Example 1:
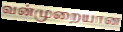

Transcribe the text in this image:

வன்முறையான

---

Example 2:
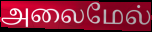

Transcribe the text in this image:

அலைமேல்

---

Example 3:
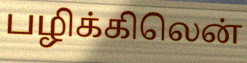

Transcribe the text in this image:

பழிக்கிலென்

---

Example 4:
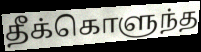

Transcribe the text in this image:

தீக்கொளுந்த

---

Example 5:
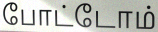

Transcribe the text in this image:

போட்டோம்